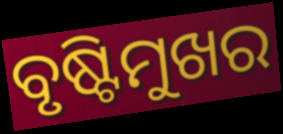
ବୃଷ୍ଟିମୁଖର